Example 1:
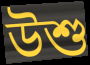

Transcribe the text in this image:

উশু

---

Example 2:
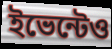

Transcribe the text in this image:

ইভেন্টেও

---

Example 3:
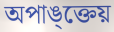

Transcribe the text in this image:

অপাঙ্‌ক্তেয়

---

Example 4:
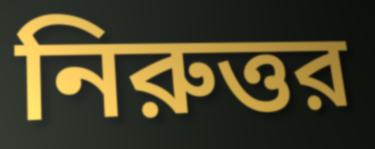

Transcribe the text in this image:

নিরুত্তর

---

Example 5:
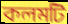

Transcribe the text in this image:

কলমটি